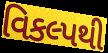
વિકલ્પથી